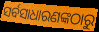
ସର୍ବସାଧାରଣଙ୍କଠାରୁ